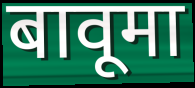
बावूमा